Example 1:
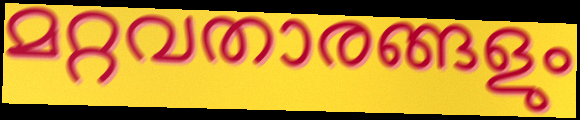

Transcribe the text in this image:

മറ്റവതാരങ്ങളും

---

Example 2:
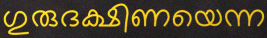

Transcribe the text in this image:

ഗുരുദക്ഷിണയെന്ന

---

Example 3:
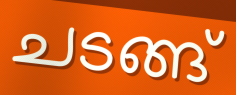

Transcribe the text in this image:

ചടങ്ങ്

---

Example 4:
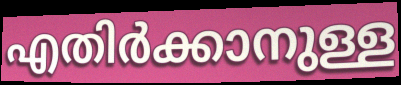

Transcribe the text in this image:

എതിർക്കാനുള്ള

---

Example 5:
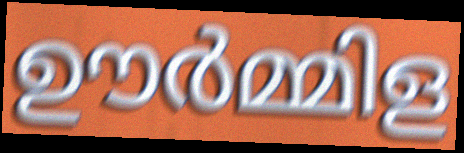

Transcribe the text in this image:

ഊർമ്മിള